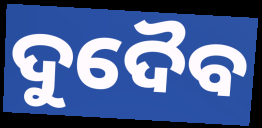
ଦୁଦୈବ